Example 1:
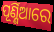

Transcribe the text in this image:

ପୂର୍ଣ୍ଣିଆରେ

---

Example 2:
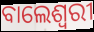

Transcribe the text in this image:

ବାଲେଶ୍ଵରୀ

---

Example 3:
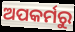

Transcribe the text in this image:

ଅପକର୍ମରୁ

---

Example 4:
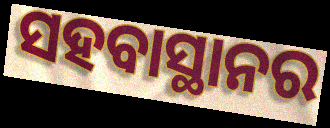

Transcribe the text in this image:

ସହବାସ୍ଥାନର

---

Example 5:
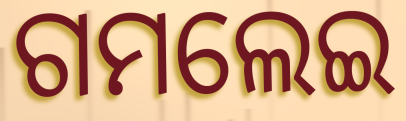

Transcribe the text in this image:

ଗମଲେଇ